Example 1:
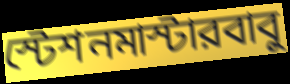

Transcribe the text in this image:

স্টেশনমাস্টারবাবু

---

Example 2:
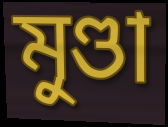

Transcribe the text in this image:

মুণ্ডা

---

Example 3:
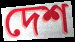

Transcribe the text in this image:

দেশ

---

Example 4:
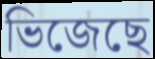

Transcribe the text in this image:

ভিজেছে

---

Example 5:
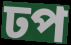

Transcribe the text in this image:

ঢপ